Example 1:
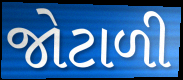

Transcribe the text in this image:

જોટાળી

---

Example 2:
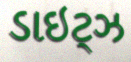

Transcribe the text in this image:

ડાઇટ્ઝ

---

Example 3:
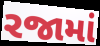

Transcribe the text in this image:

રજામાં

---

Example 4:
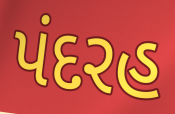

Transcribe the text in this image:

પંદરહ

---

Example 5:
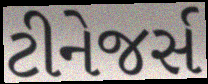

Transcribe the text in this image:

ટીનેજર્સ